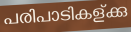
പരിപാടികള്ക്കു